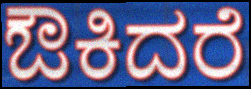
ಔಕಿದರೆ